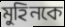
মুহিনকে